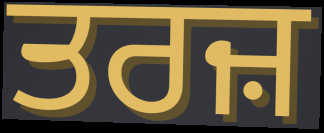
ਤਰਜ਼